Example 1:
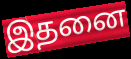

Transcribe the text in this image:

இதனை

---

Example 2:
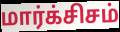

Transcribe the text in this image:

மார்க்சிசம்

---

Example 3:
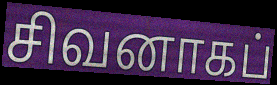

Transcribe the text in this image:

சிவனாகப்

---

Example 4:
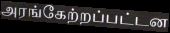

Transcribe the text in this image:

அரங்கேற்றப்பட்டன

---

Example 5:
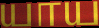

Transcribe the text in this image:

யாய